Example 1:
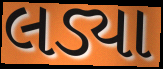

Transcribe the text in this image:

લડ્યા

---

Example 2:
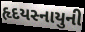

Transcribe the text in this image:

હૃદયસ્નાયુની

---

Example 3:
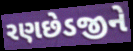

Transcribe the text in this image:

રણછેડજીને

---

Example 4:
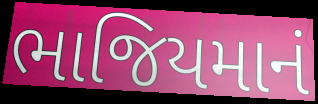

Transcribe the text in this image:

ભાજિયમાનં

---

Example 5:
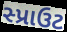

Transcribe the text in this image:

સ્પ્રાઉટ